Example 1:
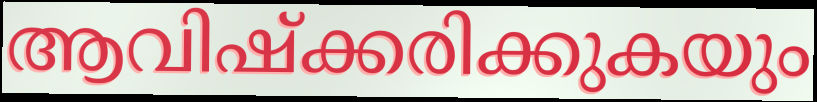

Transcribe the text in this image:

ആവിഷ്ക്കരിക്കുകയും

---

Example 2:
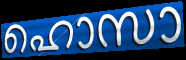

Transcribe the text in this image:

ഹൊസാ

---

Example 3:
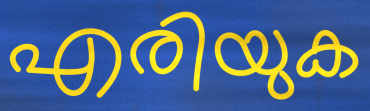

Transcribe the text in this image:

എരിയുക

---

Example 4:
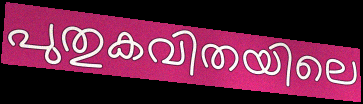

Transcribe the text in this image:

പുതുകവിതയിലെ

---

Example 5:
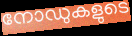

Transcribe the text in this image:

നോഡുകളുടെ